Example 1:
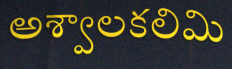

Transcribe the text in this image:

అశ్వాలకలిమి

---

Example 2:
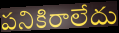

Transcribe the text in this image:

పనికిరాలేదు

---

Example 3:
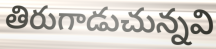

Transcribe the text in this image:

తిరుగాడుచున్నవి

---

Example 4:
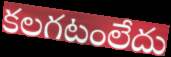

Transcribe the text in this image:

కలగటంలేదు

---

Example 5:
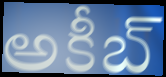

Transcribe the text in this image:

అకీబ్